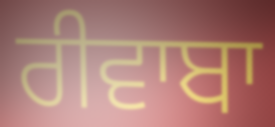
ਰੀਵਾਬਾ